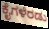
ಕೈಗಳೆರಡು